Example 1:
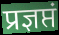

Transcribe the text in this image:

प्रज्ञप्तं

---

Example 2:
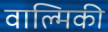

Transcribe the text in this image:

वाल्मिकी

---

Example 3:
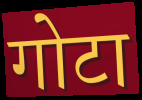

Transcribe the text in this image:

गोटा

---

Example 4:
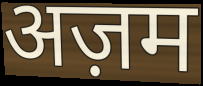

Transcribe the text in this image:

अज़म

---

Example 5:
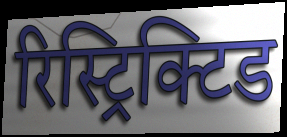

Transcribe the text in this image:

रिस्ट्रिक्टिड